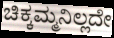
ಚಿಕ್ಕಮ್ಮನಿಲ್ಲದೇ